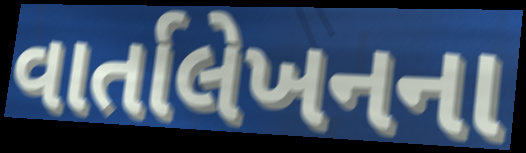
વાર્તાલેખનના